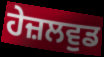
ਹੇਜ਼ਲਵੁਡ